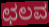
ಛಲವ